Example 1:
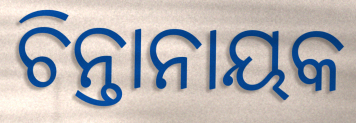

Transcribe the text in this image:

ଚିନ୍ତାନାୟକ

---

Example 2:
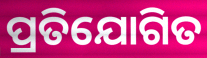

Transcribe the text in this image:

ପ୍ରତିଯୋଗିତ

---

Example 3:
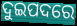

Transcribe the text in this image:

ଦୁଇପଦରେ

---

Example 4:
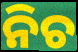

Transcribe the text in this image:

ନିଚ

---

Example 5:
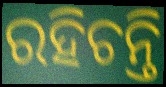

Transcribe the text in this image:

ରହିଚନ୍ତି